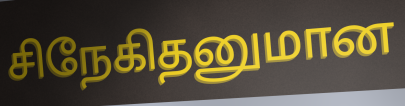
சிநேகிதனுமான